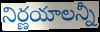
నిర్ణయాలన్నీ